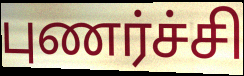
புணர்ச்சி